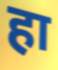
हा